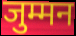
जुम्मन